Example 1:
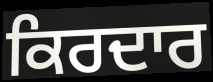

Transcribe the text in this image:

ਕਿਰਦਾਰ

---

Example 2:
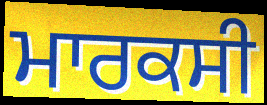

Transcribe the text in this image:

ਮਾਰਕਸੀ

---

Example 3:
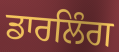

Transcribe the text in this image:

ਡਾਰਲਿੰਗ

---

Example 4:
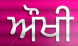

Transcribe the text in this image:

ਔਖੀ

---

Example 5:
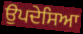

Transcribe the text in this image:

ਉਪਦੇਸਿਆ